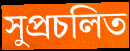
সুপ্রচলিত